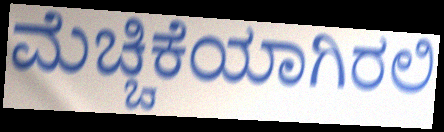
ಮೆಚ್ಚಿಕೆಯಾಗಿರಲಿ